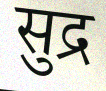
सुद्र